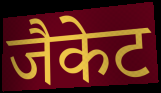
जैकेट